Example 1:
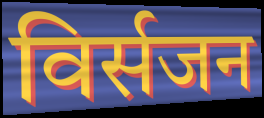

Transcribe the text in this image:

विर्सजन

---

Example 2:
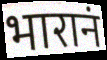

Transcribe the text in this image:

भारानं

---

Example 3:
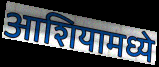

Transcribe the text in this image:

आशियामध्ये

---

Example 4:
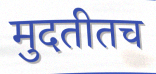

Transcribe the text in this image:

मुदतीतच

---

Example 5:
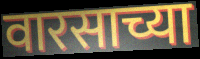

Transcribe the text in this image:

वारसाच्या